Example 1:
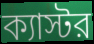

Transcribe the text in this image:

ক্যাস্টর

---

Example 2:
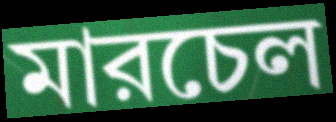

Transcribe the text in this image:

মারচেল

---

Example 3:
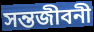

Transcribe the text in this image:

সন্তজীবনী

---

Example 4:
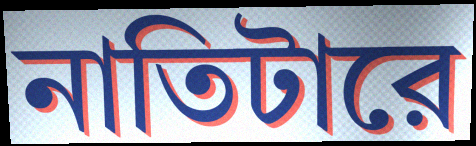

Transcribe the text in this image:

নাতিটারে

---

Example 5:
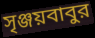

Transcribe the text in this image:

সৃঞ্জয়বাবুর